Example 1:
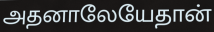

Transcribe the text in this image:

அதனாலேயேதான்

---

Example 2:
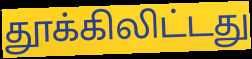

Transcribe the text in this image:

தூக்கிலிட்டது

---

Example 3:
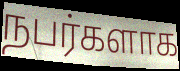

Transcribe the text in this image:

நபர்களாக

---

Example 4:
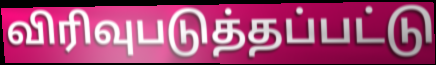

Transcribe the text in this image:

விரிவுபடுத்தப்பட்டு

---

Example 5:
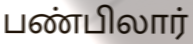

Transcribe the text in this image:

பண்பிலார்